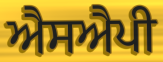
ਐਸਐਪੀ